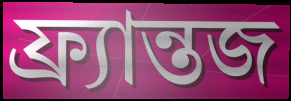
ফ্র্যান্তজ